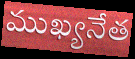
ముఖ్యనేత